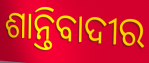
ଶାନ୍ତିବାଦୀର